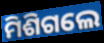
ମିଶିଗଲେ